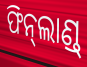
ଫିନ୍‌ଲାଣ୍ଡ୍